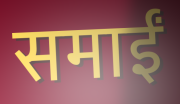
समाईं